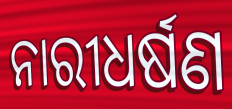
ନାରୀଧର୍ଷଣ